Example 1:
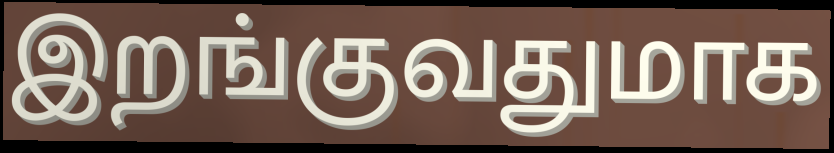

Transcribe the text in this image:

இறங்குவதுமாக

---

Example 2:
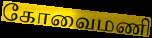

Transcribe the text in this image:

கோவைமணி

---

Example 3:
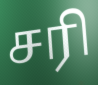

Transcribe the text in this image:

சரி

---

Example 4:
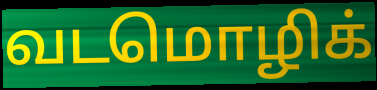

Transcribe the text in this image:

வடமொழிக்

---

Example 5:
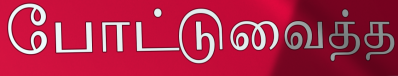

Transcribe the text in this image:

போட்டுவைத்த